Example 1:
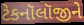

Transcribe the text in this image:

ટેકનૉલૉજીને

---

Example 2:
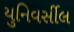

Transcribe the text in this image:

યુનિવર્સીલ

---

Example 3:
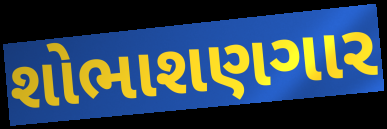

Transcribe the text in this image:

શોભાશણગાર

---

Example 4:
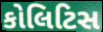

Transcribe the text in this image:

કોલિટિસ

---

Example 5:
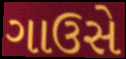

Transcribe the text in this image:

ગાઉસે